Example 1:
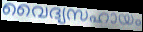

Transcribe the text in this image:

വൈദ്യസഹായം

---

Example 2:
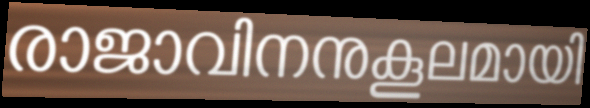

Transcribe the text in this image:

രാജാവിനനുകൂലമായി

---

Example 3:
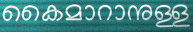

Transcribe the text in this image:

കൈമാറാനുള്ള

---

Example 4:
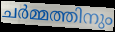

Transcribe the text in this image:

ചർമ്മത്തിനും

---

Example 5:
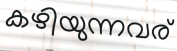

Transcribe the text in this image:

കഴിയുന്നവര്